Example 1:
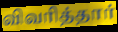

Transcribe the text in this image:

விவரித்தார்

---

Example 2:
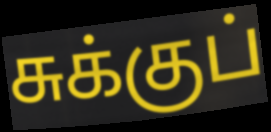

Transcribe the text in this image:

சுக்குப்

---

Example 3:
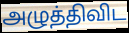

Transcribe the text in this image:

அழுத்திவிட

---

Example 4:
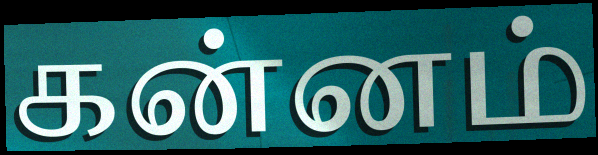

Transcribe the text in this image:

கன்னம்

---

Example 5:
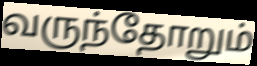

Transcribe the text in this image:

வருந்தோறும்